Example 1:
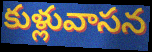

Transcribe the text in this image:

కుళ్లువాసన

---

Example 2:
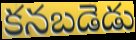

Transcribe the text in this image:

కనబడెడు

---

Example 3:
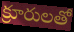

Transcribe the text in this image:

క్రూరులతో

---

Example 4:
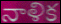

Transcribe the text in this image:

నాళిక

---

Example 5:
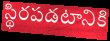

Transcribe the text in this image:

స్థిరపడటానికి